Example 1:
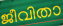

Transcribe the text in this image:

ജീവിതാ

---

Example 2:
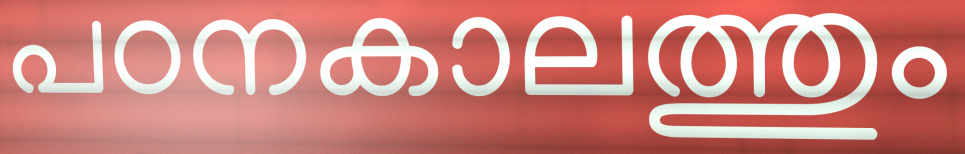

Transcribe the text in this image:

പഠനകാലത്തും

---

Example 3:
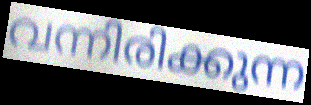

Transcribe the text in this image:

വന്നിരിക്കുന്ന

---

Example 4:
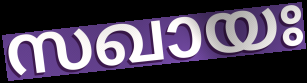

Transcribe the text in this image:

സഖായഃ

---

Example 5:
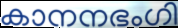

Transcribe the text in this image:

കാനനഭംഗി